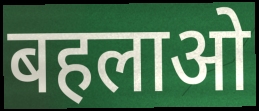
बहलाओ